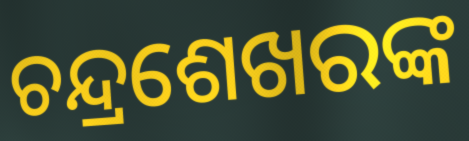
ଚନ୍ଦ୍ରଶେଖରଙ୍କ